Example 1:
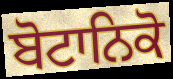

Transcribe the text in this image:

ਬੋਟਾਨਿਕੋ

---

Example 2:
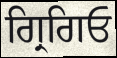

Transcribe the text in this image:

ਗ੍ਰਿਗਿਓ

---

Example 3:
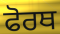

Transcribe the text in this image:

ਫੋਰਥ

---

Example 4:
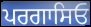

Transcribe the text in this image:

ਪਰਗਾਸਿਓ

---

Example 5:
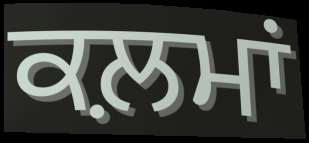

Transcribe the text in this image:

ਕਲ਼ਮਾਂ